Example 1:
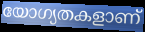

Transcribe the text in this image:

യോഗ്യതകളാണ്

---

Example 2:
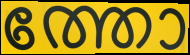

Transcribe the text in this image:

ത്തോ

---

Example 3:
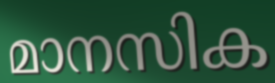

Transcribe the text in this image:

മാനസിക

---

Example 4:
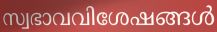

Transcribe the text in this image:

സ്വഭാവവിശേഷങ്ങൾ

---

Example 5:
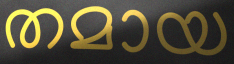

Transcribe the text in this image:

തമായ